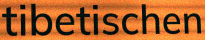
tibetischen